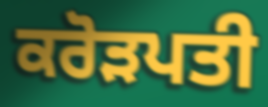
ਕਰੋੜਪਤੀ